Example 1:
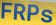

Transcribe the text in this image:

FRPs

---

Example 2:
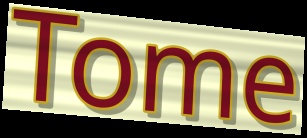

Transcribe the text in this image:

Tome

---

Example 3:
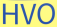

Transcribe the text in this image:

HVO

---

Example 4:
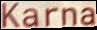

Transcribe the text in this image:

Karna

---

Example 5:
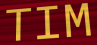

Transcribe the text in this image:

TIM